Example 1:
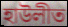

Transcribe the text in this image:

হাউলীত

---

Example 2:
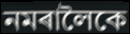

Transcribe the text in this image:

নমৰালৈকে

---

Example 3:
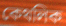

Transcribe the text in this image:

কেথলিক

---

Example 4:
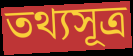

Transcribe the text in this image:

তথ্যসূত্ৰ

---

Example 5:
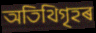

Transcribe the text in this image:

অতিথিগৃহৰ